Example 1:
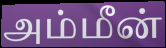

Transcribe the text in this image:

அம்மீன்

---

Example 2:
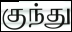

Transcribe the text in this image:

குந்து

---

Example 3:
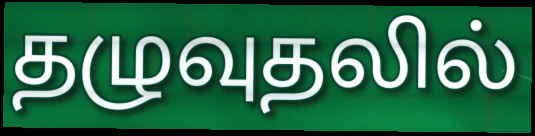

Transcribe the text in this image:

தழுவுதலில்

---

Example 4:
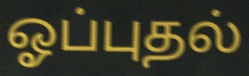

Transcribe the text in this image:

ஓப்புதல்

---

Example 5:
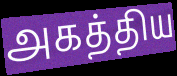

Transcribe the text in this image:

அகத்திய